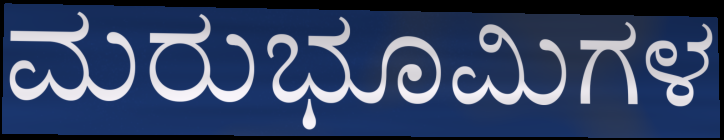
ಮರುಭೂಮಿಗಳ